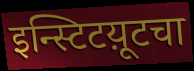
इन्स्टिटय़ूटचा